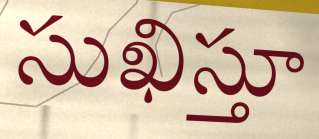
సుఖిస్తూ